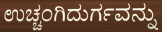
ಉಚ್ಚಂಗಿದುರ್ಗವನ್ನು